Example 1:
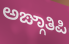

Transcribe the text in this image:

ಅಙ್ಗಾತಿಪಿ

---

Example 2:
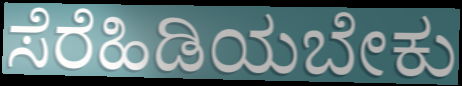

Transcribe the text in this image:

ಸೆರೆಹಿಡಿಯಬೇಕು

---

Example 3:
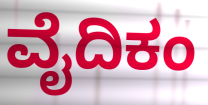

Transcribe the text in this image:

ವೈದಿಕಂ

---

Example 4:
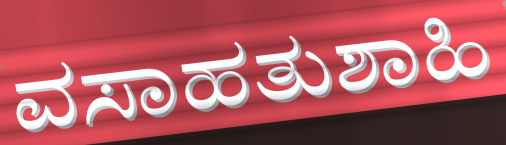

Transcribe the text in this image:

ವಸಾಹತುಶಾಹಿ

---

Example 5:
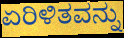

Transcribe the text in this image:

ಏರಿಳಿತವನ್ನು